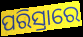
ପରିସ୍ରାରେ